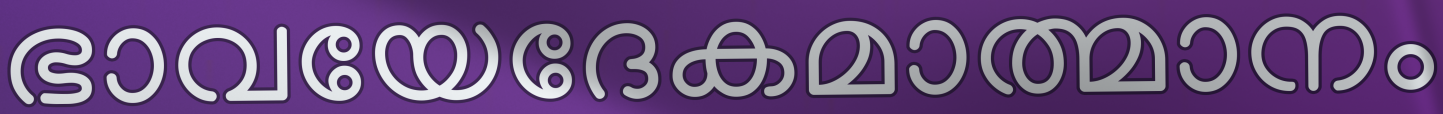
ഭാവയേദേകമാത്മാനം